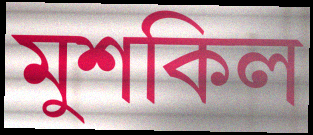
মুশকিল